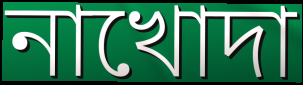
নাখোদা